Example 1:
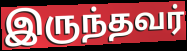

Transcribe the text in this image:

இருந்தவர்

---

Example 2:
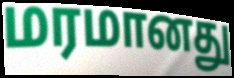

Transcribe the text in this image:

மரமானது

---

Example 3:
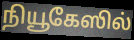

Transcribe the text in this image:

நியூகேஸில்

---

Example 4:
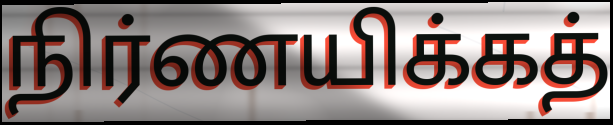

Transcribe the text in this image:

நிர்ணயிக்கத்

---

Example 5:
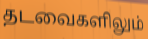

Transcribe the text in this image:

தடவைகளிலும்